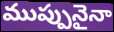
ముప్పునైనా